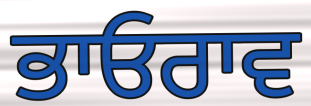
ਭਾਓਰਾਵ